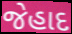
જેહાદ